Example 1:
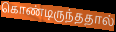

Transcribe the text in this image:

கொண்டிருந்ததால்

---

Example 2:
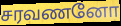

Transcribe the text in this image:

சரவணனோ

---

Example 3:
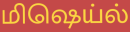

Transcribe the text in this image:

மிஷெய்ல்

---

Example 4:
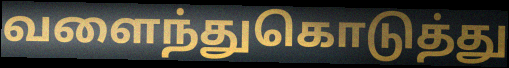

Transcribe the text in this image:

வளைந்துகொடுத்து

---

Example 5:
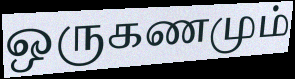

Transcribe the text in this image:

ஒருகணமும்